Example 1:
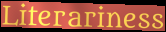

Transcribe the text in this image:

Literariness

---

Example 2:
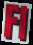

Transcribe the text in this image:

FI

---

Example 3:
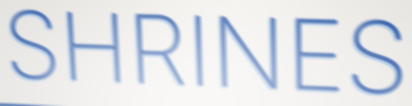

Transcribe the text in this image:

SHRINES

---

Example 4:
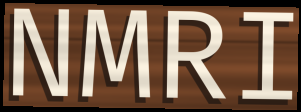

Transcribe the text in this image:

NMRI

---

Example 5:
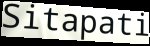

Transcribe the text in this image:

Sitapati